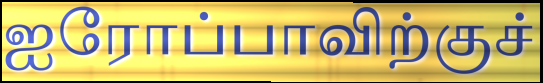
ஐரோப்பாவிற்குச்